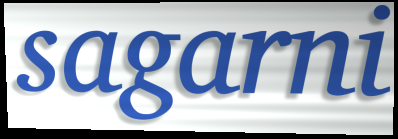
sagarni